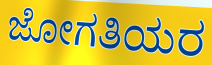
ಜೋಗತಿಯರ